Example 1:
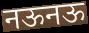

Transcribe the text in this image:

नऊनऊ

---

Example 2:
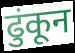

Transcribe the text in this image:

ढुंकून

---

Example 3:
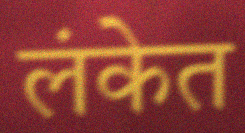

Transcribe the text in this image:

लंकेत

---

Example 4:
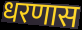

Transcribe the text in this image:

धरणास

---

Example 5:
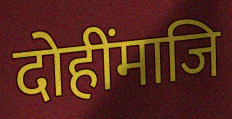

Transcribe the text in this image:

दोहींमाजि